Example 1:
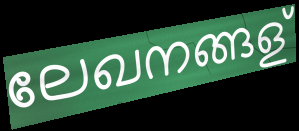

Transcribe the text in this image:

ലേഖനങ്ങള്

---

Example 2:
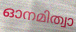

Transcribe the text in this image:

ഓനമിത്വാ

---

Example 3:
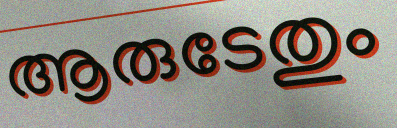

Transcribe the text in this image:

ആരുടേതും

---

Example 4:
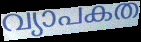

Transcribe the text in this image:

വ്യാപകത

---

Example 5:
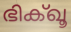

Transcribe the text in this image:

ഭിക്ഖൂ